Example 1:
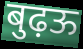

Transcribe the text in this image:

बुढ़ऊ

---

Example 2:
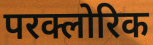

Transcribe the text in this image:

परक्लोरिक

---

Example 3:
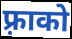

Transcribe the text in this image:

फ़्राको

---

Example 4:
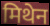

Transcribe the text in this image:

मिथेन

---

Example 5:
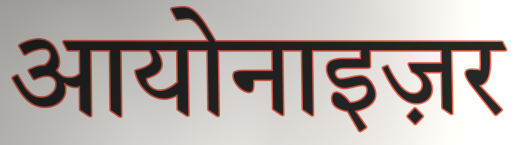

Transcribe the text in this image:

आयोनाइज़र